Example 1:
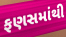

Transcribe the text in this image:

ફણસમાંથી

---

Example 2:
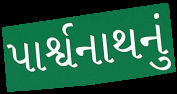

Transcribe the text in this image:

પાર્શ્વનાથનું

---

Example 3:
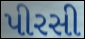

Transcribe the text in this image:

પીરસી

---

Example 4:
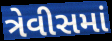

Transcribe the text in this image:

ત્રેવીસમાં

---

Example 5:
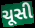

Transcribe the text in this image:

ચૂસી